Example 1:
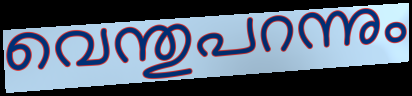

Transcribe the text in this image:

വെന്തുപറന്നും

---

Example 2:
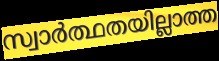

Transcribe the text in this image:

സ്വാർത്ഥതയില്ലാത്ത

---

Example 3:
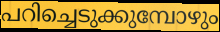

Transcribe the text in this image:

പറിച്ചെടുക്കുമ്പോഴും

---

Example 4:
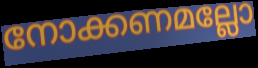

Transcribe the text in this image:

നോക്കണമല്ലോ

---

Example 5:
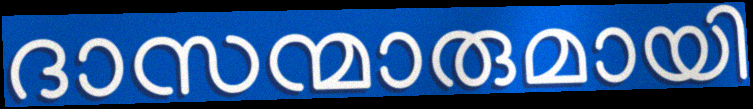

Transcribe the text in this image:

ദാസന്മാരുമായി